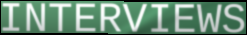
INTERVIEWS